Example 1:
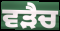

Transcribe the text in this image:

ਵੜੈਚ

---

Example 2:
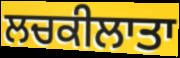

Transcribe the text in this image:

ਲਚਕੀਲਾਤਾ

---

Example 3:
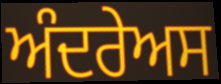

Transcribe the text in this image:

ਅੰਦਰੇਅਸ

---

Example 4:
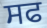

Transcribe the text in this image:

ਸਫ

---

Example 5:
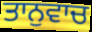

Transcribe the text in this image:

ਤਾਨੁਵਾਚ